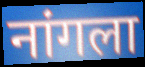
नांगला